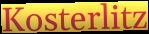
Kosterlitz